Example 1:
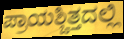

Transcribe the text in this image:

ಪ್ರಾಯಶ್ಚಿತ್ತದಲ್ಲಿ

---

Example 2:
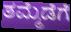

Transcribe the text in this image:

ತಮ್ಮೆಡೆಗೆ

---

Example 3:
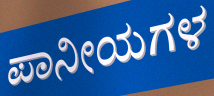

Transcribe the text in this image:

ಪಾನೀಯಗಳ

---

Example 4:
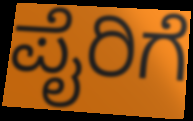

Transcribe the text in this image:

ಪೈರಿಗೆ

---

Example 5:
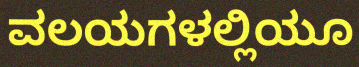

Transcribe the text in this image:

ವಲಯಗಳಲ್ಲಿಯೂ